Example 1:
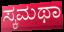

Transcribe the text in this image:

ಸ್ಕಮಥಾ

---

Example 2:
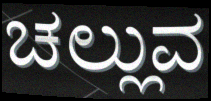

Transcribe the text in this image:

ಚಲ್ಲುವ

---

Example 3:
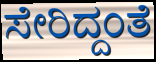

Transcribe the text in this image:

ಸೇರಿದ್ದಂತೆ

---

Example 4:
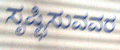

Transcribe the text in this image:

ಸೃಷ್ಟಿಸುವವರ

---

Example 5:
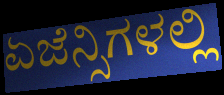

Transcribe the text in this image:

ಏಜೆನ್ಸಿಗಳಲ್ಲಿ